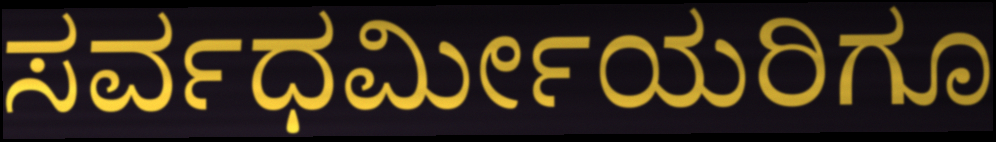
ಸರ್ವಧರ್ಮೀಯರಿಗೂ